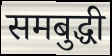
समबुद्धी